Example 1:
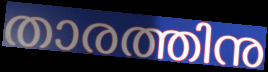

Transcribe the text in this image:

താരത്തിനു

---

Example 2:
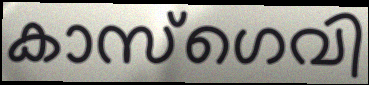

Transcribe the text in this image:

കാസ്ഗെവി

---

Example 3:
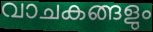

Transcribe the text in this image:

വാചകങ്ങളും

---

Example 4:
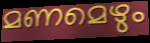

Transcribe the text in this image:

മണമെഴും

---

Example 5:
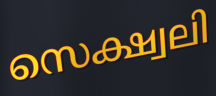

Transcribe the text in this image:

സെക്ഷ്വലി